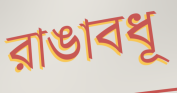
রাঙাবধূ